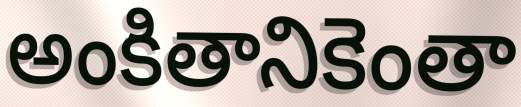
అంకితానికెంతా